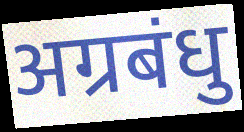
अग्रबंधु